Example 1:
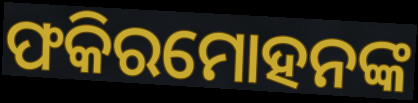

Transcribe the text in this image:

ଫକିରମୋହନଙ୍କ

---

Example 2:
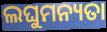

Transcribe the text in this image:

ଲଘୁମନ୍ୟତା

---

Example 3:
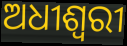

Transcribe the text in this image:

ଅଧୀଶ୍ୱରୀ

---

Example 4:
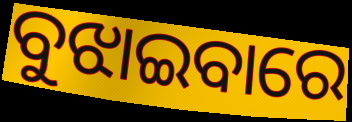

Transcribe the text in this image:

ବୁଝାଇବାରେ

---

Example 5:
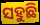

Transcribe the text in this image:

ସହୁଛି